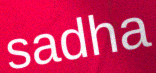
sadha